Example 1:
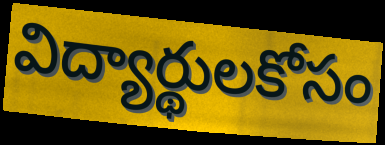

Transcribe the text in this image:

విద్యార్థులకోసం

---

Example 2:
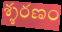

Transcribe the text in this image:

శ్శరణం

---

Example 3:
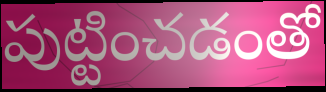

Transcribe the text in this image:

పుట్టించడంతో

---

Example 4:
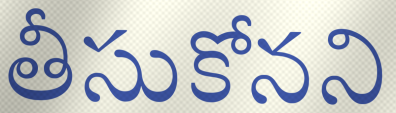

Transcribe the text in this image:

తీసుకోనని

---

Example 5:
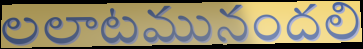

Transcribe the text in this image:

లలాటమునందలి